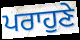
ਪਰਾਹੁਣੇ